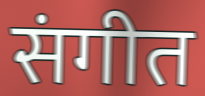
संगीत